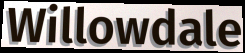
Willowdale